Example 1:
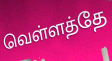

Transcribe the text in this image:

வெள்ளத்தே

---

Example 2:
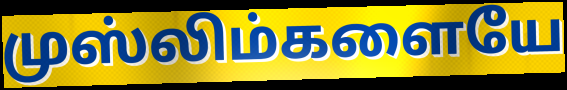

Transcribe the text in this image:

முஸ்லிம்களையே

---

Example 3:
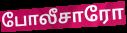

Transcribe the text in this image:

போலீசாரோ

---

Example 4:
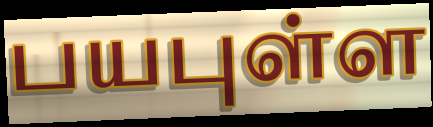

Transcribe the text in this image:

பயபுள்ள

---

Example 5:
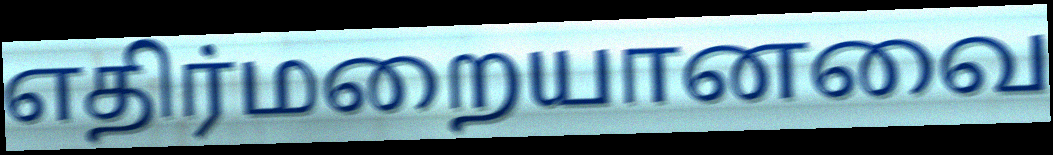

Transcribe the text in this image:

எதிர்மறையானவை